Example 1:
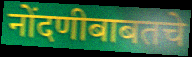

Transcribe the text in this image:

नोंदणीबाबतचे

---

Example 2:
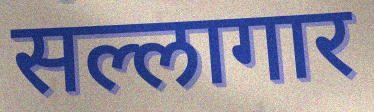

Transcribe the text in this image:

सल्लागार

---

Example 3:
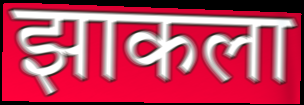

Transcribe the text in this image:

झाकला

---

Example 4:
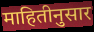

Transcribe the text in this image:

माहितीनुसार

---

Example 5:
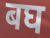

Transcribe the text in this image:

बघ